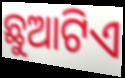
ଛୁଆଟିଏ